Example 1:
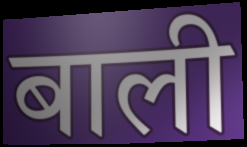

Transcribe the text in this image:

बाली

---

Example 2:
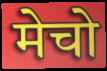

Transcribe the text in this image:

मेचो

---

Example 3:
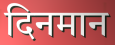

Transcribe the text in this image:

दिनमान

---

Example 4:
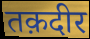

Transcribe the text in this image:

तक़दीर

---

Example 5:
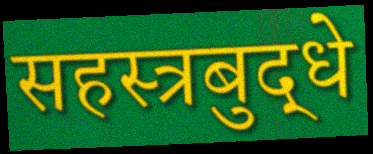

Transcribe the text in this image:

सहस्त्रबुद्धे